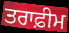
ਤਰਾਫ਼ੀਮ